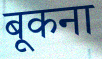
बूकना